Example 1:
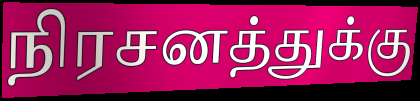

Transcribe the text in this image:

நிரசனத்துக்கு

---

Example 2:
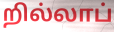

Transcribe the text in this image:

றில்லாப்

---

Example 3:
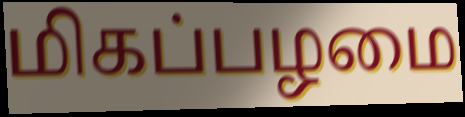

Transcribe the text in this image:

மிகப்பழமை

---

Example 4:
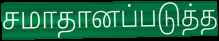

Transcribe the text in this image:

சமாதானப்படுத்த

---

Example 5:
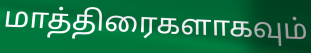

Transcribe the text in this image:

மாத்திரைகளாகவும்